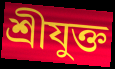
শ্রীযুক্ত